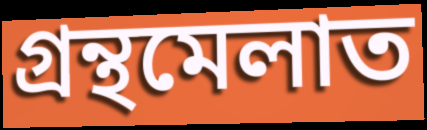
গ্ৰন্থমেলাত